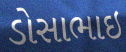
ડોસાભાઇ